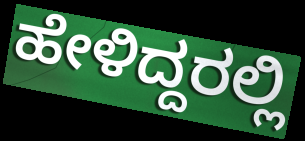
ಹೇಳಿದ್ದರಲ್ಲಿ